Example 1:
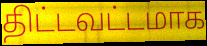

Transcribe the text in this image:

திட்டவட்டமாக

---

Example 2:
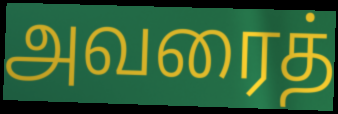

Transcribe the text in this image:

அவரைத்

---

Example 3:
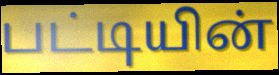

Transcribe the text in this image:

பட்டியின்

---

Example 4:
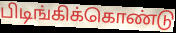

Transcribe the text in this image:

பிடிங்கிக்கொண்டு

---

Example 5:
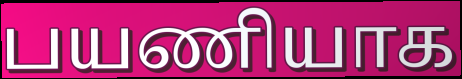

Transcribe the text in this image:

பயணியாக